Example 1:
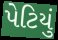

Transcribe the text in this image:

પેટિયું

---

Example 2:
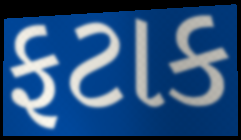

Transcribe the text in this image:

ફટાક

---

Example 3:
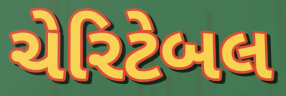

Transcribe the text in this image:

ચેરિટેબલ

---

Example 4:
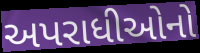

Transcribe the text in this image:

અપરાધીઓનો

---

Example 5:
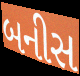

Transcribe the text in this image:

બનીસ